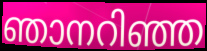
ഞാനറിഞ്ഞ